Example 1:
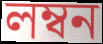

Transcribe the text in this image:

লম্বন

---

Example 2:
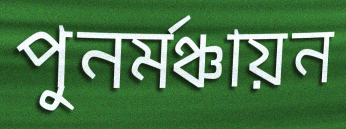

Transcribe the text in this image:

পুনর্মঞ্চায়ন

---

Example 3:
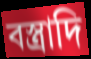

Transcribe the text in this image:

বস্ত্রাদি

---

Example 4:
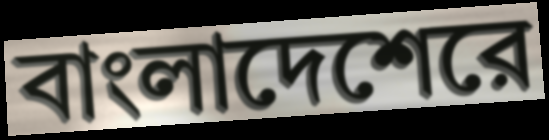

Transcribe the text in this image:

বাংলাদেশেরে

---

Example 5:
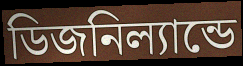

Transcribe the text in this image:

ডিজনিল্যান্ডে